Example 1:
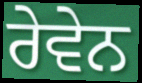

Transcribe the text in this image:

ਰੇਵੇਨ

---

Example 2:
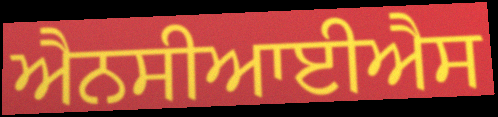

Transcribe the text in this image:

ਐਨਸੀਆਈਐਸ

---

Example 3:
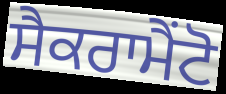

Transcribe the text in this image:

ਸੈਕਰਾਮੈਂਟੋ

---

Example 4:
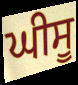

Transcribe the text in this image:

ਘੀਸੂ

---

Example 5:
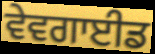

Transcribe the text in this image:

ਵੇਵਗਾਈਡ